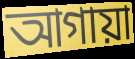
আগায়া